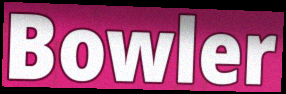
Bowler